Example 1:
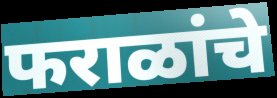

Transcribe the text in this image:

फराळांचे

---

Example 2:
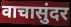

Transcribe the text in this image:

वाचासुंदर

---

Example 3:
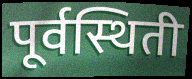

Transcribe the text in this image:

पूर्वस्थिती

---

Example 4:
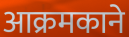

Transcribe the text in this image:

आक्रमकाने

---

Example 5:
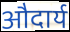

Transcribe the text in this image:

औदार्य